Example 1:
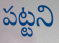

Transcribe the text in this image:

పట్టని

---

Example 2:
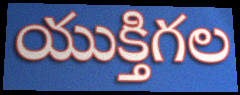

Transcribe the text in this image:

యుక్తిగల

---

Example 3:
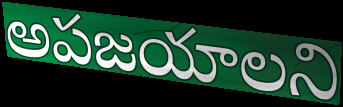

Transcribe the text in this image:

అపజయాలని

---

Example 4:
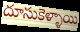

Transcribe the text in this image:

దూసుకెళ్ళాయి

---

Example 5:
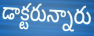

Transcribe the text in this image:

డాక్టరున్నారు